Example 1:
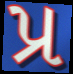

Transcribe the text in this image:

પ્ર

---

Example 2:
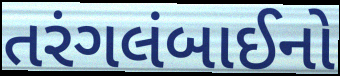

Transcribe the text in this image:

તરંગલંબાઈનો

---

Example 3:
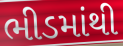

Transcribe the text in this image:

ભીડમાંથી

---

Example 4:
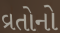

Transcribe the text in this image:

વ્રતોનો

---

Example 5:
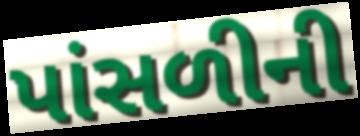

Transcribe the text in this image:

પાંસળીની